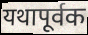
यथापूर्वक